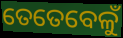
ତେତେବେଳୁଁ